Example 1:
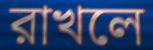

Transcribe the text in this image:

রাখলে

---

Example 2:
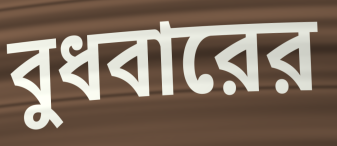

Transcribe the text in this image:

বুধবারের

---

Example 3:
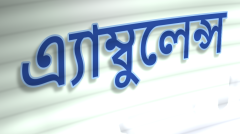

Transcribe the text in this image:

এ্যাম্বুলেন্স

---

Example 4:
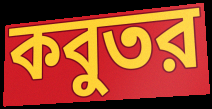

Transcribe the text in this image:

কবুতর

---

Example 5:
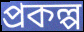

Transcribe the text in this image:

প্রকল্প